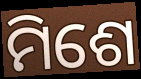
ମିଶେ